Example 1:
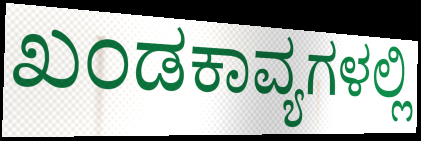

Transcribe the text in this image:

ಖಂಡಕಾವ್ಯಗಳಲ್ಲಿ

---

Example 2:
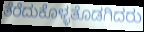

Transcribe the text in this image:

ತೆರೆದುಕೊಳ್ಳತೊಡಗಿದರು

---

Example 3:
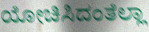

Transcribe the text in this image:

ಯೋಚಿಸಿದಂತೆಲ್ಲಾ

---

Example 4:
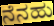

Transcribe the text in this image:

ನೆನಹು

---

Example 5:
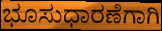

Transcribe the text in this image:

ಭೂಸುಧಾರಣೆಗಾಗಿ